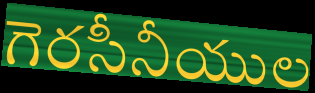
గెరసీనీయుల